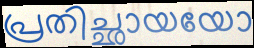
പ്രതിച്ഛായയോ